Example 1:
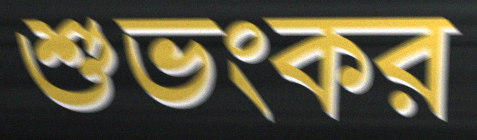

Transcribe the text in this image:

শুভংকর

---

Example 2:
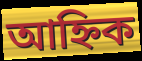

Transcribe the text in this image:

আহ্নিক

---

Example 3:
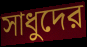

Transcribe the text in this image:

সাধুদের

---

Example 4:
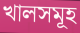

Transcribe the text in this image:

খালসমূহ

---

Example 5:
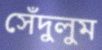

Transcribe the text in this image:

সেঁদুলুম